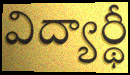
విద్యార్థీ